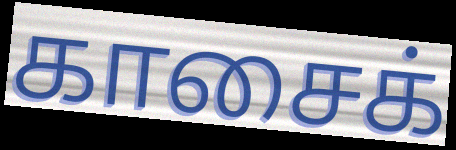
காசைக்